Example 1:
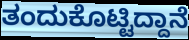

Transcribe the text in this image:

ತಂದುಕೊಟ್ಟಿದ್ದಾನೆ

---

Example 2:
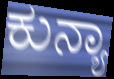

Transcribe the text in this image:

ಕುನ್ಯಾ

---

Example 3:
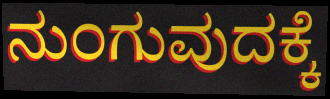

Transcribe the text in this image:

ನುಂಗುವುದಕ್ಕೆ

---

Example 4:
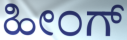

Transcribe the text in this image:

ಹೀಂಗ್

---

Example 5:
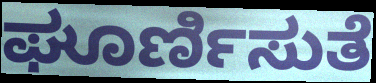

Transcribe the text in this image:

ಘೂರ್ಣಿಸುತೆ